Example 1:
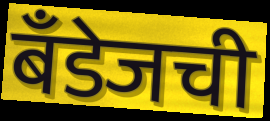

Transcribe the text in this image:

बँडेजची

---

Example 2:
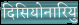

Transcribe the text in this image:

दिसियोनारियु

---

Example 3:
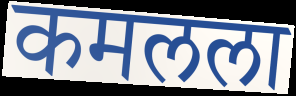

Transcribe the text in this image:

कमलला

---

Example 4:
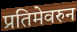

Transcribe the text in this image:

प्रतिमेवरुन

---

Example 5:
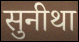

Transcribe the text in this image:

सुनीथा